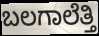
ಬಲಗಾಲೆತ್ತಿ